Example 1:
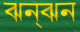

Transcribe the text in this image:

ঝন্ঝন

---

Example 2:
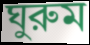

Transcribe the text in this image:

ঘুরুম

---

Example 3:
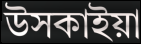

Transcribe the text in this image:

উসকাইয়া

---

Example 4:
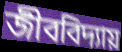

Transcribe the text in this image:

জীববিদ্যায়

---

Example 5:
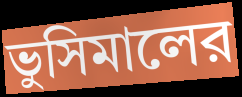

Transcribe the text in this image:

ভুসিমালের